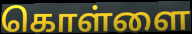
கொள்ளை